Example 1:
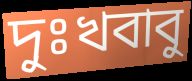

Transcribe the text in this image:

দুঃখবাবু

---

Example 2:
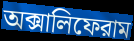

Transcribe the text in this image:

অক্সালিফেরাম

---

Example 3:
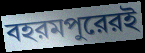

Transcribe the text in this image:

বহরমপুরেরই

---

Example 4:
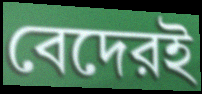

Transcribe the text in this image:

বেদেরই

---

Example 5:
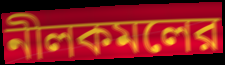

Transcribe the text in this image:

নীলকমলের